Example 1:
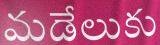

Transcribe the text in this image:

మడేలుకు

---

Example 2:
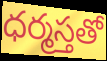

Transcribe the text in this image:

ధర్మస్తతో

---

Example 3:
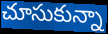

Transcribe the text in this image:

చూసుకున్నా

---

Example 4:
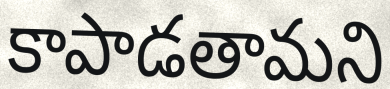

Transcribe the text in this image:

కాపాడతామని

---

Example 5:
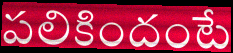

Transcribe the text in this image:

పలికిందంటే